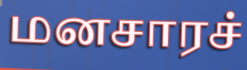
மனசாரச்